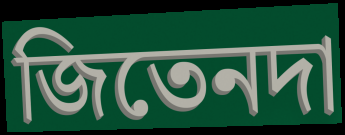
জিতেনদা